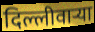
दिल्लीवाऱ्या